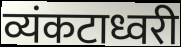
व्यंकटाध्वरी